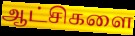
ஆட்சிகளை